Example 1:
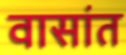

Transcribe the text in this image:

वासांत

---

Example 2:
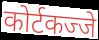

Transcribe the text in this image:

कोर्टकज्जे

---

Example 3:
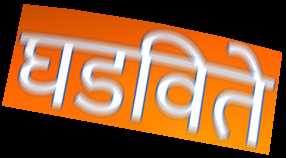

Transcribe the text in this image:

घडविते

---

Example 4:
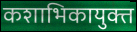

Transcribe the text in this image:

कशाभिकायुक्त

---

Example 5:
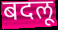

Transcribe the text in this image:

बदलू